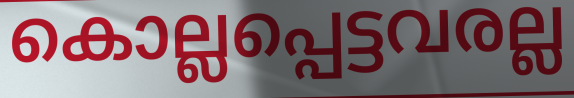
കൊല്ലപ്പെട്ടവരല്ല